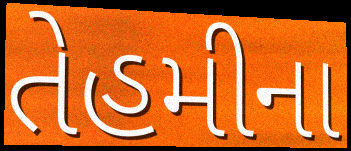
તેહમીના